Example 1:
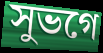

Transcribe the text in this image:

সুভগে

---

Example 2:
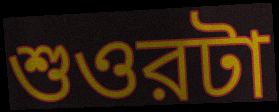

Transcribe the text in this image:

শুওরটা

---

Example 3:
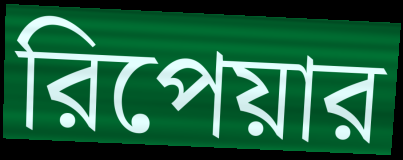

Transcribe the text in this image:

রিপেয়ার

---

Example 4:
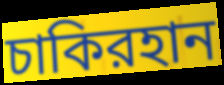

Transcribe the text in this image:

চাকিরহান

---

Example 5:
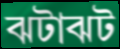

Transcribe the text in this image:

ঝটাঝট